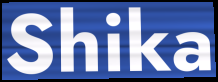
Shika